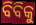
ବିବିକୁ